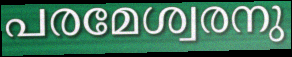
പരമേശ്വരനു